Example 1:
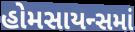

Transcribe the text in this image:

હોમસાયન્સમાં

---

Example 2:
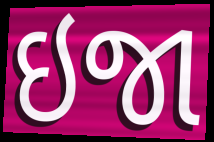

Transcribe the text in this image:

ઇજા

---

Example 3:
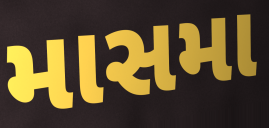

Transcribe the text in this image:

માસમા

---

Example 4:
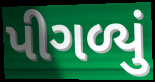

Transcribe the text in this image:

પીગળ્યું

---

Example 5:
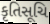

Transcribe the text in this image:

કૃતિસૂચિ